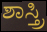
ಶಾಸ್ತ್ರಿ